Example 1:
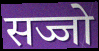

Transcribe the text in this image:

सज्जो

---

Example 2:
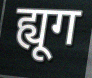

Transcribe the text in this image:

ह्यूग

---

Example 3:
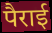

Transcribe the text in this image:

पैराई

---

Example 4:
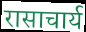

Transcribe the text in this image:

रासाचार्य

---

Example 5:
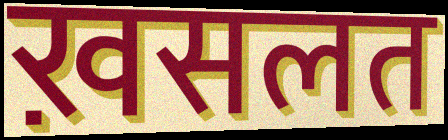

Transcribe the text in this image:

ख़सलत